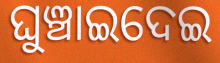
ଘୁଞ୍ଚାଇଦେଇ